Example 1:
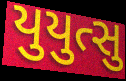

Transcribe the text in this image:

યુયુત્સુ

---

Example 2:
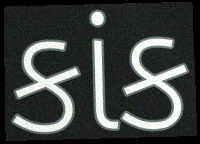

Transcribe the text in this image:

કાંક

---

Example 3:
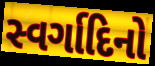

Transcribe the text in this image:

સ્વર્ગાદિનો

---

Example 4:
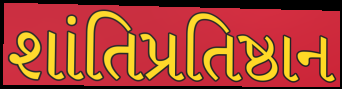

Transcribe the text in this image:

શાંતિપ્રતિષ્ઠાન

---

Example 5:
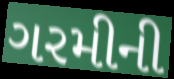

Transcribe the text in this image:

ગરમીની